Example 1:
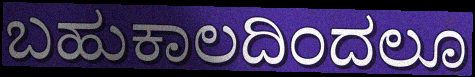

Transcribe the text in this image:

ಬಹುಕಾಲದಿಂದಲೂ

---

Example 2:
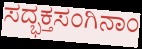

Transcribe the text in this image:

ಸದ್ಭಕ್ತಸಂಗಿನಾಂ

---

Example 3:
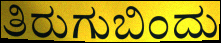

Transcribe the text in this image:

ತಿರುಗುಬಿಂದು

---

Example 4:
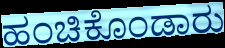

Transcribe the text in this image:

ಹಂಚಿಕೊಂಡಾರು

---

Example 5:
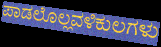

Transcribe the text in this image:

ಪಾಡಲೊಲ್ಲವಳಿಕುಲಗಳು